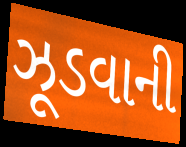
ઝૂડવાની